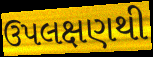
ઉપલક્ષણથી